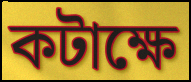
কটাক্ষে